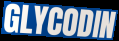
GLYCODIN